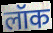
लॉक